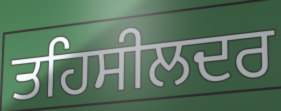
ਤਹਿਸੀਲਦਰ